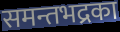
समन्तभद्रका